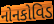
નોનકોવિડ